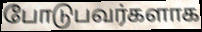
போடுபவர்களாக